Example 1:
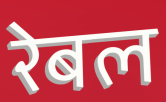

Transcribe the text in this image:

रेबल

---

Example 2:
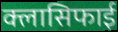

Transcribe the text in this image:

क्लासिफाई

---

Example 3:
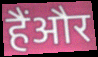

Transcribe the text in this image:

हैंऔर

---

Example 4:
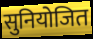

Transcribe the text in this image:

सुनियोजित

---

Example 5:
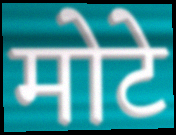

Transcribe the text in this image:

मोटे